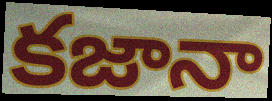
కజానా